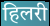
हिलरी